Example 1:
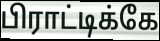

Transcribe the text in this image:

பிராட்டிக்கே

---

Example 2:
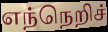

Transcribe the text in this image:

எந்நெறிச்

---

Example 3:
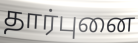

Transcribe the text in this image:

தார்புனை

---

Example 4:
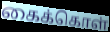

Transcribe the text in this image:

கைக்கொள்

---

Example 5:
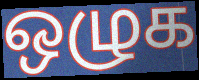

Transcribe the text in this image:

ஒழுக